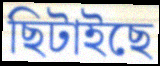
ছিটাইছে